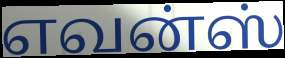
எவன்ஸ்